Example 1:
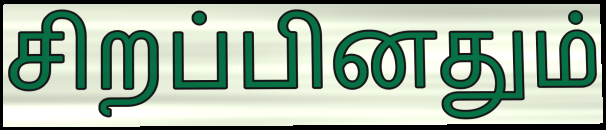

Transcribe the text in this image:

சிறப்பினதும்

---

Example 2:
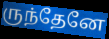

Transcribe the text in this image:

ருந்தேனே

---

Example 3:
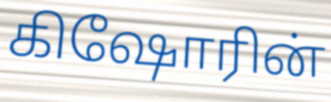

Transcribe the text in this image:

கிஷோரின்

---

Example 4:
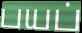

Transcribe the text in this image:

பயப்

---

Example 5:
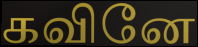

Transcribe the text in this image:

கவினே